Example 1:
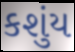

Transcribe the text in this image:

કશુંય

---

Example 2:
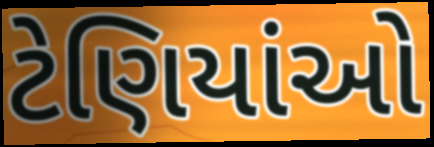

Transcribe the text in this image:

ટેણિયાંઓ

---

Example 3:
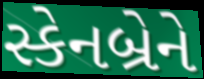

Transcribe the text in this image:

સ્કેનબ્રેને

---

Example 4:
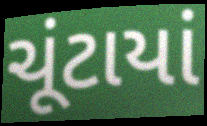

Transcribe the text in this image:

ચૂંટાયાં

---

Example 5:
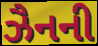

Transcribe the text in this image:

ઝૈનની